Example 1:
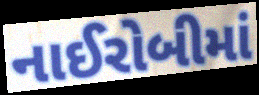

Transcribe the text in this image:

નાઈરોબીમાં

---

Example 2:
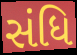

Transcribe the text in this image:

સંધિ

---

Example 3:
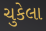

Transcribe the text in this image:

ચુકેલા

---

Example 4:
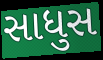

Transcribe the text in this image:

સાધુસ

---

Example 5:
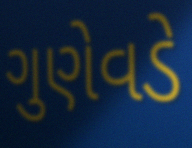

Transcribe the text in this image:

ગુણેવડે